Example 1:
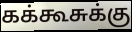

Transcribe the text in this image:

கக்கூசுக்கு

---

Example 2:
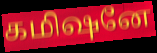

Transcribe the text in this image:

கமிஷனே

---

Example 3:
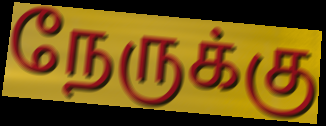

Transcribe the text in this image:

நேருக்கு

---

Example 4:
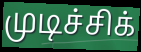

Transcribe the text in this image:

முடிச்சிக்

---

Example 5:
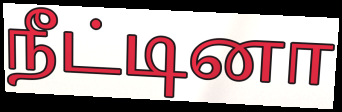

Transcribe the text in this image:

நீட்டினா